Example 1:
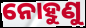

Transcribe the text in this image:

ନୋହୁଣୁ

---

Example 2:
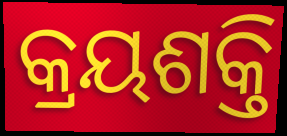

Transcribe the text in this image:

କ୍ରୟଶକ୍ତି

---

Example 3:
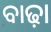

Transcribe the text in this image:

ବାଢ଼ା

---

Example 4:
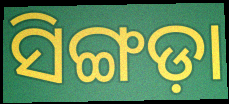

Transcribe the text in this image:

ସିଙ୍ଗଡ଼ା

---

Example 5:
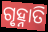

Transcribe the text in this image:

ଗୃହ୍ନାତି